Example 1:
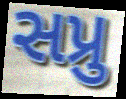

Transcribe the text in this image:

સપ્રુ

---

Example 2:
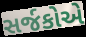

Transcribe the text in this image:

સર્જકોએ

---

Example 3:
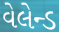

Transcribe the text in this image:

વેલેન્ડ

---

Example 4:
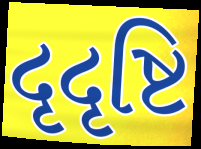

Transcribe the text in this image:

દૃદૃષ્ટિ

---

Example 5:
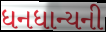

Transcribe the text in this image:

ધનધાન્યની